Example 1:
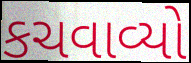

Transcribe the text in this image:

કચવાવ્યો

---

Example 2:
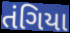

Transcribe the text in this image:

તંગિયા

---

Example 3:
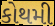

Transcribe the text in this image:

કોથમી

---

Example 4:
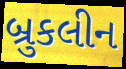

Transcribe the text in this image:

બ્રુકલીન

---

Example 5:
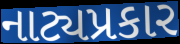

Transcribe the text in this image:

નાટ્યપ્રકાર